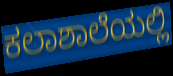
ಕಲಾಶಾಲೆಯಲ್ಲಿ